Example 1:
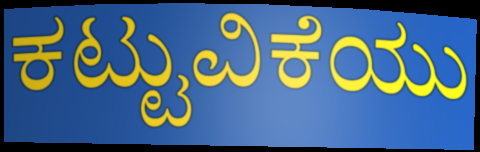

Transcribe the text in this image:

ಕಟ್ಟುವಿಕೆಯು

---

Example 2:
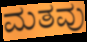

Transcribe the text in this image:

ಮತವು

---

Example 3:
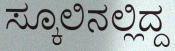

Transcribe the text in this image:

ಸ್ಕೂಲಿನಲ್ಲಿದ್ದ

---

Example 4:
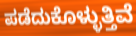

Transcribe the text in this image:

ಪಡೆದುಕೊಳ್ಳುತ್ತಿವೆ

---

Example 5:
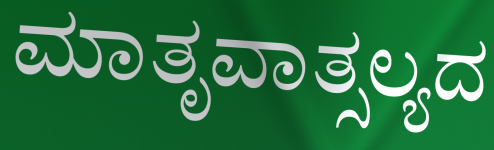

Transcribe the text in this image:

ಮಾತೃವಾತ್ಸಲ್ಯದ